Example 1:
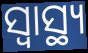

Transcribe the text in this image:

ସ୍ୱାସ୍ଥ୍ୟ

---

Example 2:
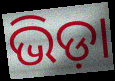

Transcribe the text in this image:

ଭିଡ଼ା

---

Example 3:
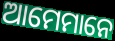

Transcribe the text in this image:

ଆମେମାନେ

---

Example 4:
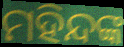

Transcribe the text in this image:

ମହିନ୍ଦଙ୍କ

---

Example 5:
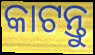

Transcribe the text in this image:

କାଟନ୍ତୁ